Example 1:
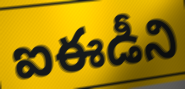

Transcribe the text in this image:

ఐఈడీని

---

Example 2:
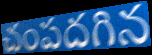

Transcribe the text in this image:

చంపదగిన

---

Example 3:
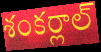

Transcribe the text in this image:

శంకర్లాల్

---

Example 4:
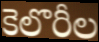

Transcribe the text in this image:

కెలొరీల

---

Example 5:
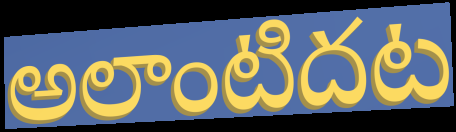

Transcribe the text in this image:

అలాంటిదట